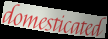
domesticated